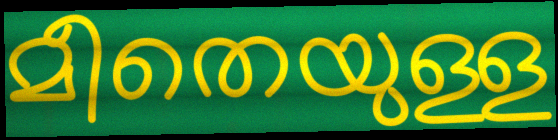
മീതെയുള്ള